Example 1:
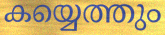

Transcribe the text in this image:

കയ്യെത്തും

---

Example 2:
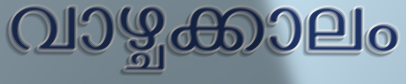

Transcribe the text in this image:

വാഴ്ചക്കാലം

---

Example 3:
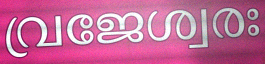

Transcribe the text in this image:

വ്രജേശ്വരഃ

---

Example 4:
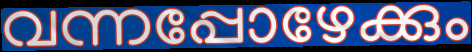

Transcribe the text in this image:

വന്നപ്പോഴേക്കും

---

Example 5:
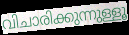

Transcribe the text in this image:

വിചാരിക്കുന്നുള്ളൂ